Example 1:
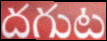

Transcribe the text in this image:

దగుట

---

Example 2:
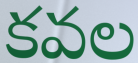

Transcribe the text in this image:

కవల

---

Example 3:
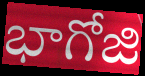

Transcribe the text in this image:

భాగోజి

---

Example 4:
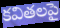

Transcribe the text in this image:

కవితలపై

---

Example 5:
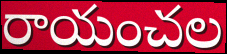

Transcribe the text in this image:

రాయంచల